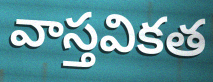
వాస్తవికత